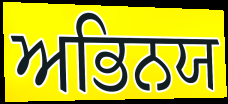
ਅਭਿਨਯ